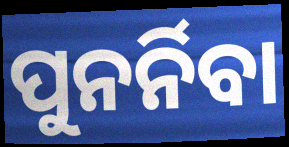
ପୁନର୍ନିବା